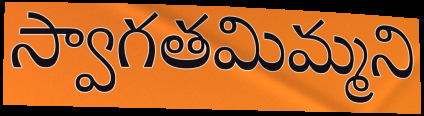
స్వాగతమిమ్మని